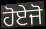
ਹੋਏਜੋ